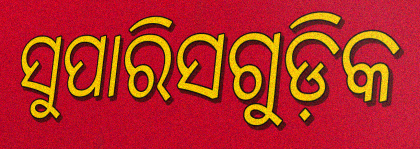
ସୁପାରିସଗୁଡ଼ିକ